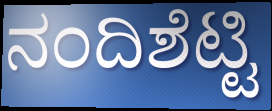
ನಂದಿಶೆಟ್ಟಿ